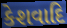
કેશવાદિ